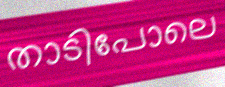
താടിപോലെ